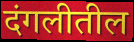
दंगलीतील